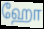
ஹோ